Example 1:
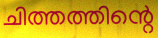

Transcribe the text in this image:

ചിത്തത്തിന്റെ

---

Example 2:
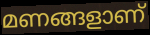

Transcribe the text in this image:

മണങ്ങളാണ്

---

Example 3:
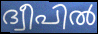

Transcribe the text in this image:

ദ്വീപിൽ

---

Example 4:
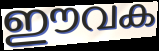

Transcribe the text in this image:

ഈവക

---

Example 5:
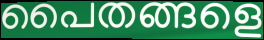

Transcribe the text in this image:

പൈതങ്ങളെ